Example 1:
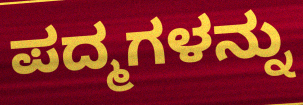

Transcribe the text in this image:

ಪದ್ಮಗಳನ್ನು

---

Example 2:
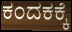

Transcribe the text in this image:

ಕಂದಕಕ್ಕೆ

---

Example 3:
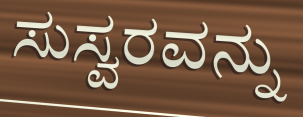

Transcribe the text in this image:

ಸುಸ್ವರವನ್ನು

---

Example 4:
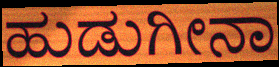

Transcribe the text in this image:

ಹುಡುಗೀನಾ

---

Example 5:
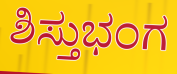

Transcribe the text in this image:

ಶಿಸ್ತುಭಂಗ